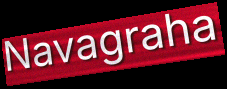
Navagraha